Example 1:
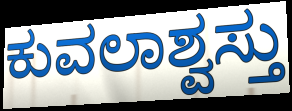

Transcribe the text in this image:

ಕುವಲಾಶ್ವಸ್ತು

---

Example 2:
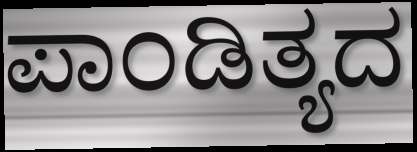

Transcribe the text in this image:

ಪಾಂಡಿತ್ಯದ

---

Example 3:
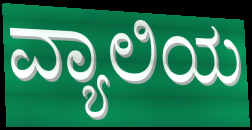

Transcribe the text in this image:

ವ್ಯಾಲಿಯ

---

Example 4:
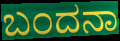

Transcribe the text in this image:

ಬಂದನಾ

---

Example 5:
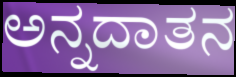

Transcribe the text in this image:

ಅನ್ನದಾತನ